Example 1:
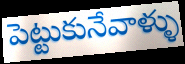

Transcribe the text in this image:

పెట్టుకునేవాళ్ళు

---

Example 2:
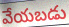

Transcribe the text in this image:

వేయబడు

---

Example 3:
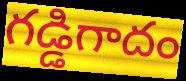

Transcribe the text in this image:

గడ్డిగాదం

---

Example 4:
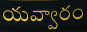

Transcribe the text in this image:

యవ్వారం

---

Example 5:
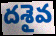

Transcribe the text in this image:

దశైవ